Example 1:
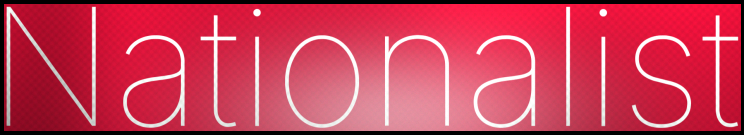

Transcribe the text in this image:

Nationalist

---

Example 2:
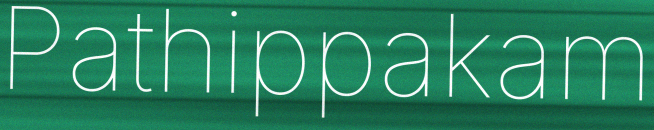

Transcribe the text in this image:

Pathippakam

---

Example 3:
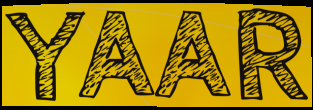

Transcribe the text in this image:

YAAR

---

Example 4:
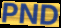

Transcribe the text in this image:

PND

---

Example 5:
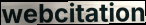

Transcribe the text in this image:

webcitation